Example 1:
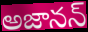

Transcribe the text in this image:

అజానన్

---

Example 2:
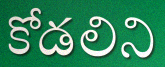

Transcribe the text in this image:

కోడలిని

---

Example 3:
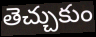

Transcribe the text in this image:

తెచ్చుకుం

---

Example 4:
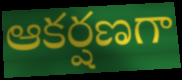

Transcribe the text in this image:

ఆకర్షణగా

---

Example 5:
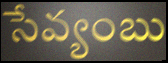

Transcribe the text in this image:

సేవ్యంబు